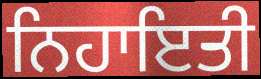
ਨਿਹਾਇਤੀ